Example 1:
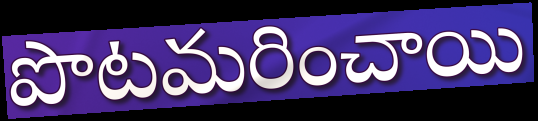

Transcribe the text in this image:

పొటమరించాయి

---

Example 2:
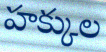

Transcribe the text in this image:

హక్కుల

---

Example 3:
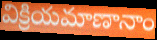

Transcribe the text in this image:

విక్రియమాణానాం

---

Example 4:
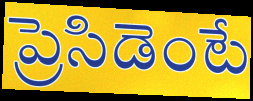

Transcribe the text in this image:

ప్రెసిడెంటే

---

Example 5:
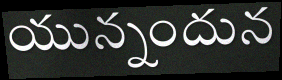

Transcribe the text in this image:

యున్నందున